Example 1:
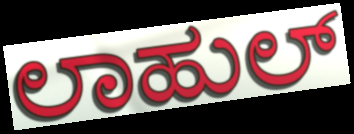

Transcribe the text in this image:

ಲಾಹುಲ್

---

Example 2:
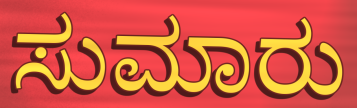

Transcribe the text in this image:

ಸುಮಾರು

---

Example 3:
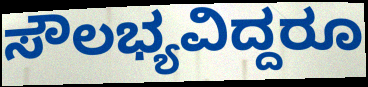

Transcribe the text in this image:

ಸೌಲಭ್ಯವಿದ್ದರೂ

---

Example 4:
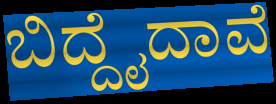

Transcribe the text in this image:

ಬಿದ್ದೈದಾವೆ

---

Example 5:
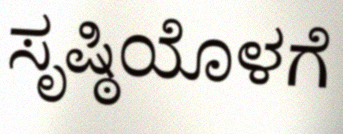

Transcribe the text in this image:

ಸೃಷ್ಠಿಯೊಳಗೆ